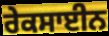
ਰੇਕਸਾਈਨ